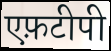
एफ़टीपी